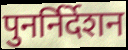
पुनर्निर्देशन